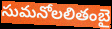
సుమనోలలితంబై